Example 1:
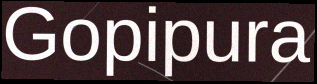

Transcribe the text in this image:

Gopipura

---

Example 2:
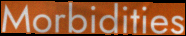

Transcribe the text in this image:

Morbidities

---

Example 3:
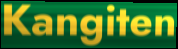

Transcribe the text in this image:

Kangiten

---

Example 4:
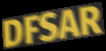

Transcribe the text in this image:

DFSAR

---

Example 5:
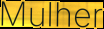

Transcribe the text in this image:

Mulher